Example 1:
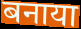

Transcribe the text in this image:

बनाया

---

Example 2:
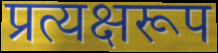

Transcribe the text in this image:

प्रत्यक्षरूप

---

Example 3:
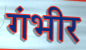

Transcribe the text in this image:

गंभीर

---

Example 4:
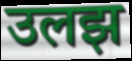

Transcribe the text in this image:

उलझ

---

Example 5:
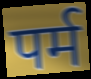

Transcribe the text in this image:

पर्म